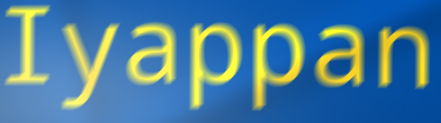
Iyappan